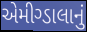
એમીગ્ડાલાનું